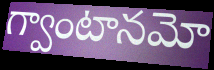
గ్వాంటానమో